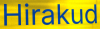
Hirakud